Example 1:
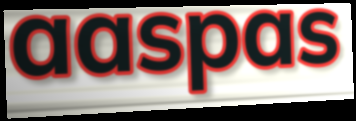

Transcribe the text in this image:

aaspas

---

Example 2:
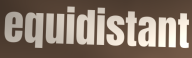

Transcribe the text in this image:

equidistant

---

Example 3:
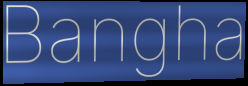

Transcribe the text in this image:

Bangha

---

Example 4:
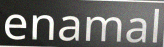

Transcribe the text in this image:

enamal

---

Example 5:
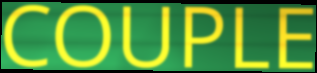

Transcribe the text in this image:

COUPLE